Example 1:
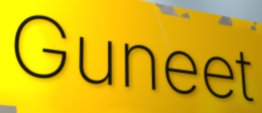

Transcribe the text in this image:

Guneet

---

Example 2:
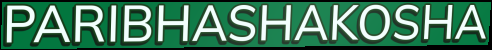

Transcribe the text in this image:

PARIBHASHAKOSHA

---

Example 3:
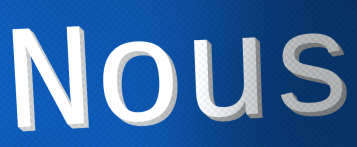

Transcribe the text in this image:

Nous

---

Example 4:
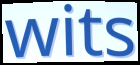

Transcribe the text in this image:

wits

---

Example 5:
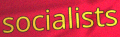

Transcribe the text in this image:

socialists